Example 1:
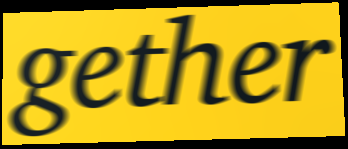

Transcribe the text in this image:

gether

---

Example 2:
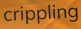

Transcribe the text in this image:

crippling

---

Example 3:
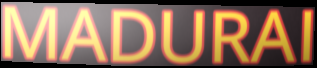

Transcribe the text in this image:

MADURAI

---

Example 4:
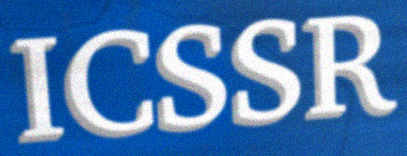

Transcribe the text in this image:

ICSSR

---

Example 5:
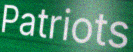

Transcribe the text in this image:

Patriots